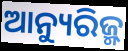
ଆନ୍ୟୁରିଜ୍ମ୍